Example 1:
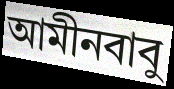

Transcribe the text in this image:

আমীনবাবু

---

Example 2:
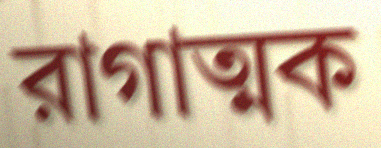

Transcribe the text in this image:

রাগাত্মক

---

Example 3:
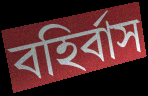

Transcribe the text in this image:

বহির্বাস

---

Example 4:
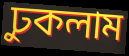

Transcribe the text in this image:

ঢুকলাম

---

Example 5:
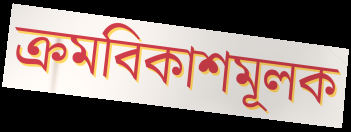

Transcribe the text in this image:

ক্রমবিকাশমূলক